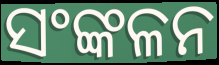
ସଂଙ୍କଳନ